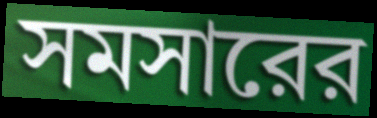
সমসারের